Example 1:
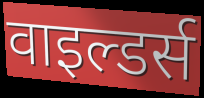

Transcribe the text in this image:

वाइल्डर्स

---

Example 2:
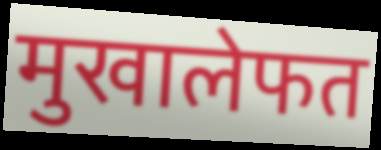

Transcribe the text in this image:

मुखालेफत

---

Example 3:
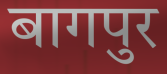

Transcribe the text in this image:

बागपुर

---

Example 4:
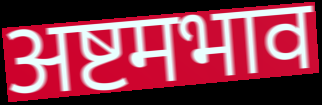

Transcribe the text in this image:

अष्टमभाव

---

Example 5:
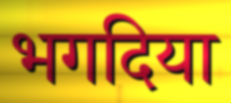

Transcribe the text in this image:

भगदिया